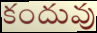
కందువు